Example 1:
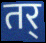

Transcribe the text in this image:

तर्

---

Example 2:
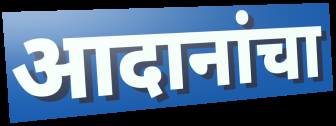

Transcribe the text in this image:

आदानांचा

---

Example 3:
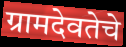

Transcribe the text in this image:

ग्रामदेवतेचे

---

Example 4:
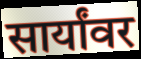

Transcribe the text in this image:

सार्यांवर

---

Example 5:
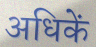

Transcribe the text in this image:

अधिकें